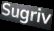
Sugriv